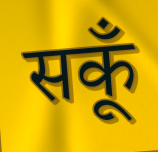
सकूँ